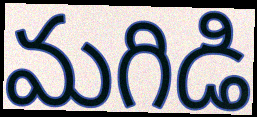
మగిడి